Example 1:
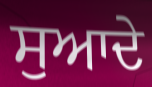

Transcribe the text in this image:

ਸੁਆਦੇ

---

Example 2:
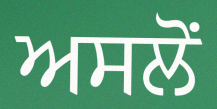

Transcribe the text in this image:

ਅਸਲੋਂ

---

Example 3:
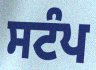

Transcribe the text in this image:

ਸਟੰਪ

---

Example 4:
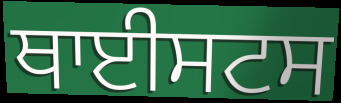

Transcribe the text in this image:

ਥਾਈਸਟਸ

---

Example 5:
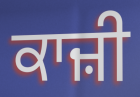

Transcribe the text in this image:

ਕਾਜ਼ੀ